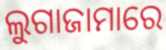
ଲୁଗାଜାମାରେ